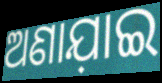
ଅଣାଯ଼ାଇ